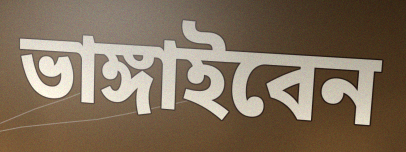
ভাঙ্গাইবেন